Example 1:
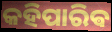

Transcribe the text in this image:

କହିପାରିଵ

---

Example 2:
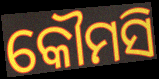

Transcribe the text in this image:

କୌମସି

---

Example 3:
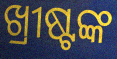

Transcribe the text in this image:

ଖ୍ରୀଷ୍ଟଙ୍କ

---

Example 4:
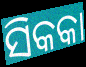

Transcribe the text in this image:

ସିକକା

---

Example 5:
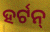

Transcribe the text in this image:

ହର୍ଟନ୍